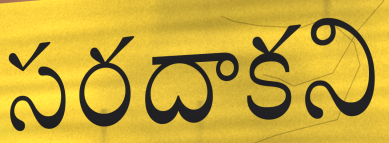
సరదాకని